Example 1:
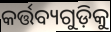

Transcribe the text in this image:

କର୍ତ୍ତବ୍ୟଗୁଡ଼ିକୁ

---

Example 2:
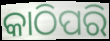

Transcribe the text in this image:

କାଠିପରି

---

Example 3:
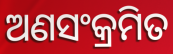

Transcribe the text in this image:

ଅଣସଂକ୍ରମିତ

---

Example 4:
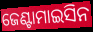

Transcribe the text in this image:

ଜେଣ୍ଟାମାଇସିନ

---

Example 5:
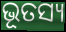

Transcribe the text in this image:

ଭୂତସ୍ୟ